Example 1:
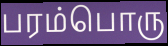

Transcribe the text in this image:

பரம்பொரு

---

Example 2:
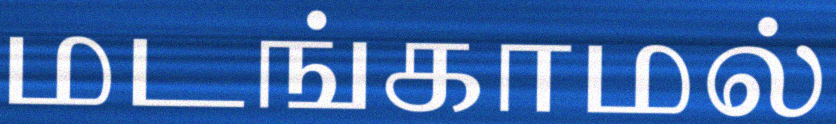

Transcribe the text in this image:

மடங்காமல்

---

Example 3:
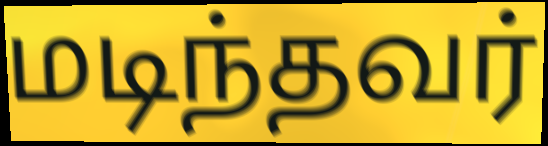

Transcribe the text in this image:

மடிந்தவர்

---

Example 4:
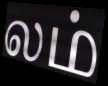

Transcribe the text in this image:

லம்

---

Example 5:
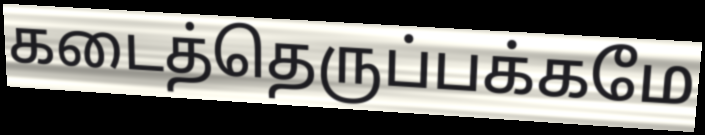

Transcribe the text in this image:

கடைத்தெருப்பக்கமே